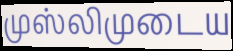
முஸ்லிமுடைய